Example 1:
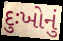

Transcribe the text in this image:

દુઃખોનું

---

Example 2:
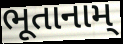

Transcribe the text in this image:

ભૂતાનામ્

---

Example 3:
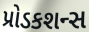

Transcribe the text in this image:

પ્રોડકશન્સ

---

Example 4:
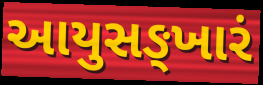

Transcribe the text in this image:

આયુસઙ્ખારં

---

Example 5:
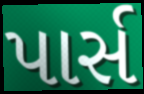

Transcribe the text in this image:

પાર્સ